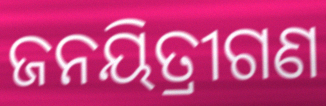
ଜନୟିତ୍ରୀଗଣ